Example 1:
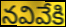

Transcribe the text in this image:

నవివేకి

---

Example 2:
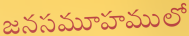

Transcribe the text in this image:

జనసమూహములో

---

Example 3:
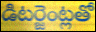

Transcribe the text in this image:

డిటర్జెంట్లతో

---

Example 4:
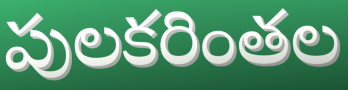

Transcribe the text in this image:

పులకరింతల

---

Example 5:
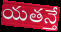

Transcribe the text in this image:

యతన్తే